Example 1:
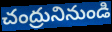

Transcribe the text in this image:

చంద్రునినుండి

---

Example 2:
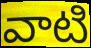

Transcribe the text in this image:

వాటి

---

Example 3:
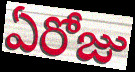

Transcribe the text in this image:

ఏరోజు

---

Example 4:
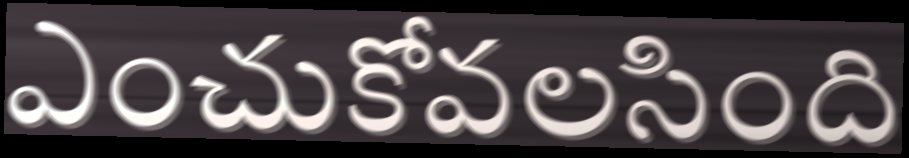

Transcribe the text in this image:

ఎంచుకోవలసింది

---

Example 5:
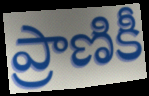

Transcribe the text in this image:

ప్రాణికీ